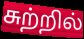
சுற்றில்